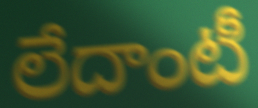
లేదాంటీ